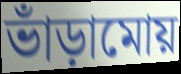
ভাঁড়ামোয়